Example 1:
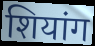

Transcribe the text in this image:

शियांग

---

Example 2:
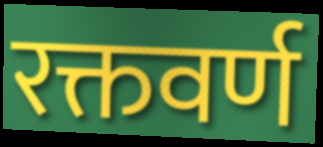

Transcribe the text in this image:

रक्तवर्ण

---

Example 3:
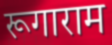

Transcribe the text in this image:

रूगाराम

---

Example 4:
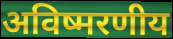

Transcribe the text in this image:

अविष्मरणीय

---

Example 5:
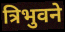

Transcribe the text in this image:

त्रिभुवने